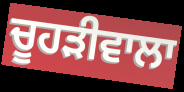
ਚੂਹੜੀਵਾਲਾ